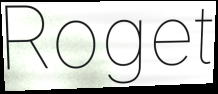
Roget